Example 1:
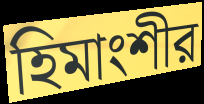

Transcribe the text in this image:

হিমাংশীর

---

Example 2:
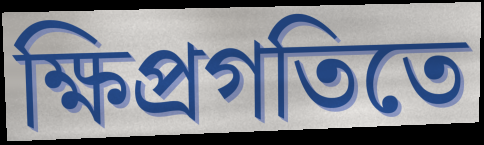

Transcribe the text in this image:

ক্ষিপ্রগতিতে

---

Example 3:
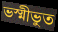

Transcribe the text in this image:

ভস্মীভুত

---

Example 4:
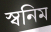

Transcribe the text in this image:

স্বনিম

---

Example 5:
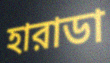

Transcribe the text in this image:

হারাডা